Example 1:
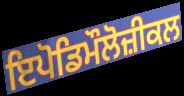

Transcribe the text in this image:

ਇਪੋਡਿਮੌਲੋਜ਼ੀਕਲ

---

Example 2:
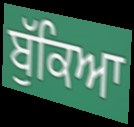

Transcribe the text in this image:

ਬੁੱਕਿਆ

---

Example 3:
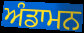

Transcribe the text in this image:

ਅੰਡਾਮਨ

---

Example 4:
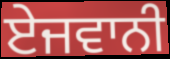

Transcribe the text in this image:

ਏਜਵਾਨੀ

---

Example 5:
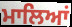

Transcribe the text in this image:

ਮਾਲਿਆਂ